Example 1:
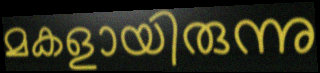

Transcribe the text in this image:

മകളായിരുന്നു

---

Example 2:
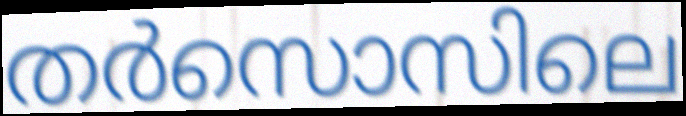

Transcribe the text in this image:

തർസൊസിലെ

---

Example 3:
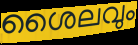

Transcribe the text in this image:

ശൈലവും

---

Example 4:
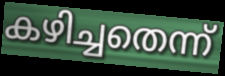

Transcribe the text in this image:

കഴിച്ചതെന്ന്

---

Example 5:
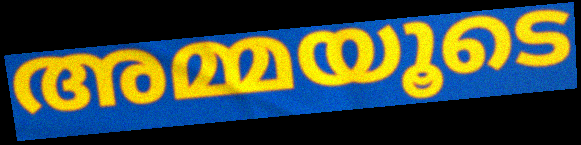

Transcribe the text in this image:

അമ്മയൂടെ